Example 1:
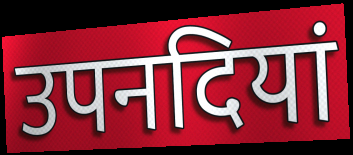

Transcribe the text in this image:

उपनदियां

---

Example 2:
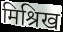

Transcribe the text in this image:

मिश्रिख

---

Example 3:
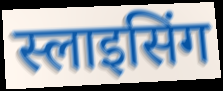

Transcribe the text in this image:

स्लाइसिंग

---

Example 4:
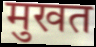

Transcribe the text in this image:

मुखत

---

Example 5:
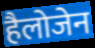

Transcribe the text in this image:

हैलोजेन